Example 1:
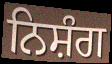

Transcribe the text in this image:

ਨਿਸ਼ੰਗ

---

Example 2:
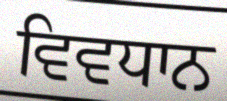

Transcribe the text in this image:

ਵਿਵਧਾਨ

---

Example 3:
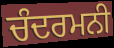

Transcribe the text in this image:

ਚੰਦਰਮਨੀ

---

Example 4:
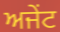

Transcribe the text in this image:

ਅਜੇਂਟ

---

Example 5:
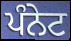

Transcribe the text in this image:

ਪੰਨੇਟ